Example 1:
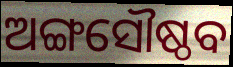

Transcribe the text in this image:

ଅଙ୍ଗସୌଷ୍ଠବ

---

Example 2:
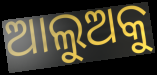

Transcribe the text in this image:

ଆଲୁଅକୁ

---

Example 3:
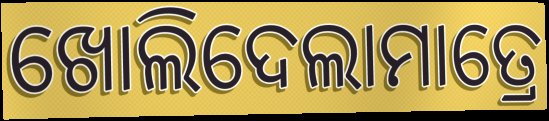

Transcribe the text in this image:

ଖୋଲିଦେଲାମାତ୍ରେ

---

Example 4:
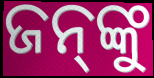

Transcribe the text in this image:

ଜନ୍‍ଙ୍କୁ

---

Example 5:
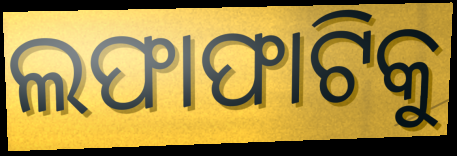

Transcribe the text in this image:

ଲଫାଫାଟିକୁ